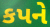
કપને